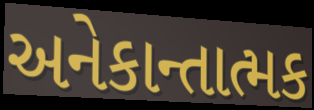
અનેકાન્તાત્મક